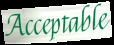
Acceptable